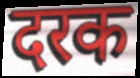
दरक